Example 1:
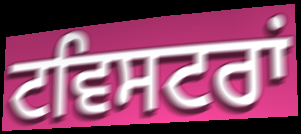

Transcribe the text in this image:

ਟਵਿਸਟਰਾਂ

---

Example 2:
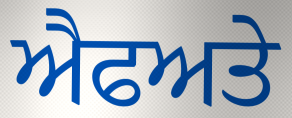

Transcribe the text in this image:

ਐਫਅਤੇ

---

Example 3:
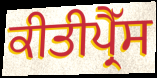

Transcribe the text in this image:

ਕੀਤੀਪ੍ਰੈੱਸ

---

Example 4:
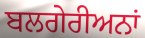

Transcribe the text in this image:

ਬਲਗੇਰੀਅਨਾਂ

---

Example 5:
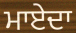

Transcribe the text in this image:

ਮਾਏਦਾ